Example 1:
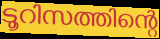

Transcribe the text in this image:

ടൂറിസത്തിന്റെ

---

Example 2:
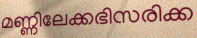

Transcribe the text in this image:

മണ്ണിലേക്കഭിസരിക്ക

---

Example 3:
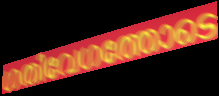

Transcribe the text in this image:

ഗതിവേഗത്തോടെ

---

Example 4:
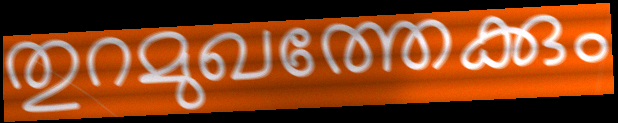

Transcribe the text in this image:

തുറമുഖത്തേക്കും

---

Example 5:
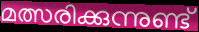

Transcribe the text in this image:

മത്സരിക്കുന്നുണ്ട്